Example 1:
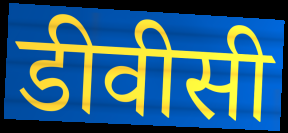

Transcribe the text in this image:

डीवीसी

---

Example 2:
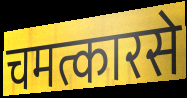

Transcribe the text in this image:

चमत्कारसे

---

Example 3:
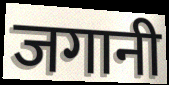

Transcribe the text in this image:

जगानी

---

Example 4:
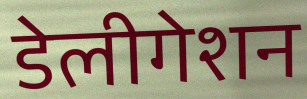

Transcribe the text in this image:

डेलीगेशन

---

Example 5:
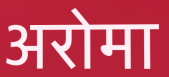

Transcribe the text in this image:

अरोमा